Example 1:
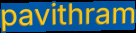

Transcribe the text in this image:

pavithram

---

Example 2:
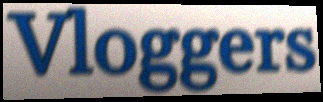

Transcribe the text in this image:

Vloggers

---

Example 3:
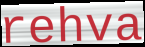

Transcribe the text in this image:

rehva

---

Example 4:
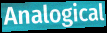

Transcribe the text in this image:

Analogical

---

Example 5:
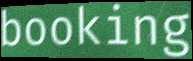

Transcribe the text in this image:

booking